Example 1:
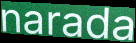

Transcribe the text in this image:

narada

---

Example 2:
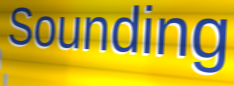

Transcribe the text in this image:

Sounding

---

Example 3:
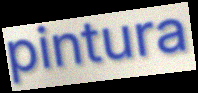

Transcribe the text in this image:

pintura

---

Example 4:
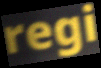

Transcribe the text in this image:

regi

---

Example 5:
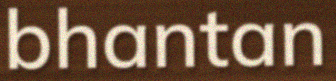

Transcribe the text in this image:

bhantan